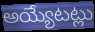
అయ్యేటట్లు